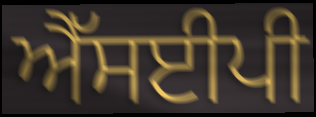
ਐੱਸਈਪੀ